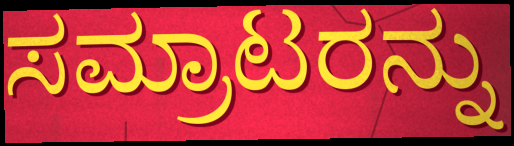
ಸಮ್ರಾಟರನ್ನು